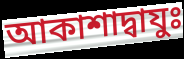
আকাশাদ্বাযুঃ